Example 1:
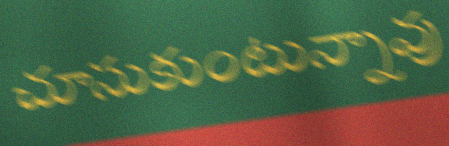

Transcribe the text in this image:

చూసుకుంటున్నావు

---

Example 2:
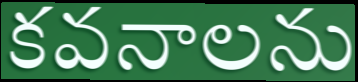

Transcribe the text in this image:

కవనాలను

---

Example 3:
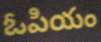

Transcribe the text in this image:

ఓపియం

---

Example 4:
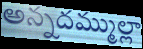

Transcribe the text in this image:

అన్నదమ్ముల్లా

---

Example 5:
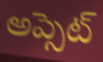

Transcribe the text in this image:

అప్సెట్